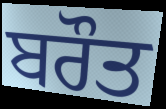
ਬਰੌਤ